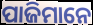
ପାଜିମାନେ